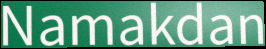
Namakdan